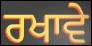
ਰਖਾਵੇ